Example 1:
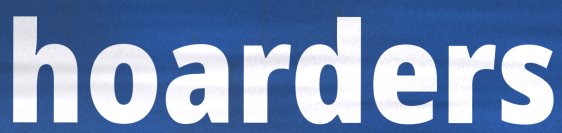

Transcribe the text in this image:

hoarders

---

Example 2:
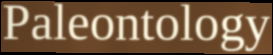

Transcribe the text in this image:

Paleontology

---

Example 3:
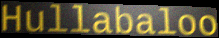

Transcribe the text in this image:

Hullabaloo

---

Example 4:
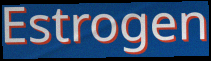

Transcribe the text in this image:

Estrogen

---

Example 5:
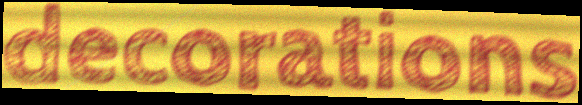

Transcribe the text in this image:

decorations